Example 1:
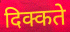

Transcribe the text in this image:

दिक्कते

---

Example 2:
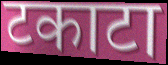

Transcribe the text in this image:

टकाटा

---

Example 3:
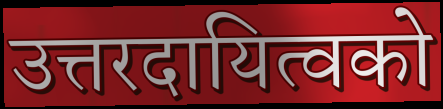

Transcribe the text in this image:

उत्तरदायित्वको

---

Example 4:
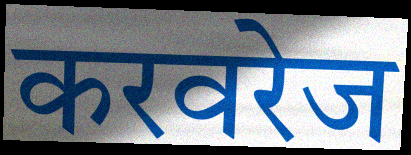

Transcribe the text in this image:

करवरेज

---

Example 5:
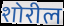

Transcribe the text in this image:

शोरील